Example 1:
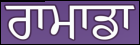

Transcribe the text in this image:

ਰਾਮਾਡਾ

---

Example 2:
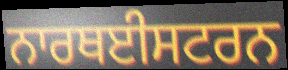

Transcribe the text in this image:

ਨਾਰਥਈਸਟਰਨ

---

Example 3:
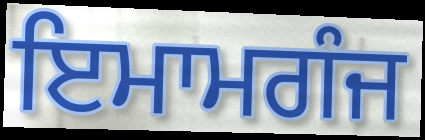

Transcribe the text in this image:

ਇਮਾਮਗੰਜ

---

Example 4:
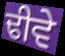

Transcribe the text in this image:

ਢੀਵੇ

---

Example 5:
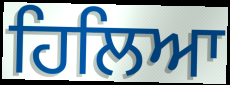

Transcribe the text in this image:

ਹਿਲਿਆ